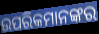
ଉପରିକମାନଙ୍କର